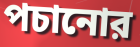
পচানোর